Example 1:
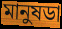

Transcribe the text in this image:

মানুষডা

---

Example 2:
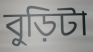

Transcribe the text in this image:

বুড়িটা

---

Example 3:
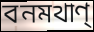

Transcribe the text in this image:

বনমথাণ্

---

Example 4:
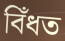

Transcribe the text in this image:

বিঁধত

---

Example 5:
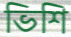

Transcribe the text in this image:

ভিশি